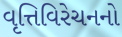
વૃત્તિવિરેચનનો